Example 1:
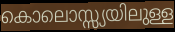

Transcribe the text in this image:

കൊലൊസ്സ്യയിലുള്ള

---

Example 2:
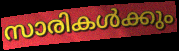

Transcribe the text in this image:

സാരികൾക്കും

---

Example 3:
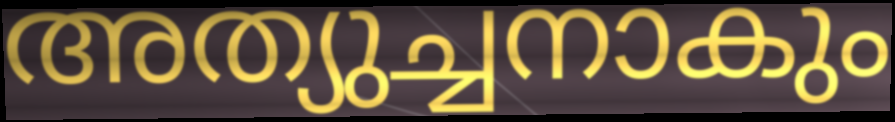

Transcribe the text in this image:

അത്യുച്ചനാകും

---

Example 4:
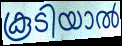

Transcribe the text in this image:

കൂടിയാൽ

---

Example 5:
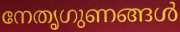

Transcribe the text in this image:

നേതൃഗുണങ്ങൾ